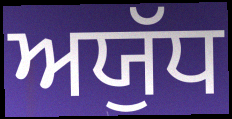
ਅਯੁੱਧ